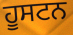
ਹੂਸਟਨ